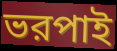
ভরপাই